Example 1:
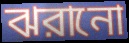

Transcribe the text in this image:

ঝরানো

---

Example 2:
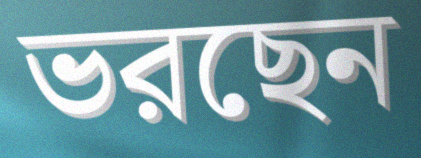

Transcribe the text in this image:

ভরছেন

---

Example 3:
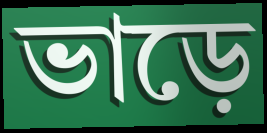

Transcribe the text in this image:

ভাড়ে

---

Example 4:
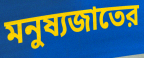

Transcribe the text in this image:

মনুষ্যজাতের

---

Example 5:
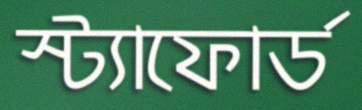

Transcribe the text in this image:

স্ট্যাফোর্ড